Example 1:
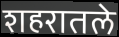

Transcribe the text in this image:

शहरातले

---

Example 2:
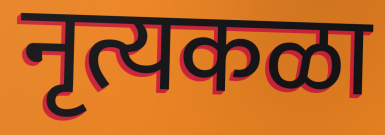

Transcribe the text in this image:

नृत्यकळा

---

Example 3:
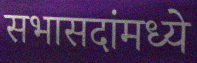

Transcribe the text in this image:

सभासदांमध्ये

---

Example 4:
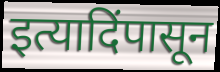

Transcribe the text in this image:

इत्यादिंपासून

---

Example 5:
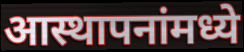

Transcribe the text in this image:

आस्थापनांमध्ये